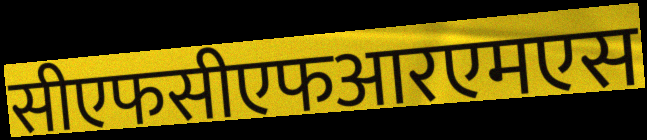
सीएफसीएफआरएमएस